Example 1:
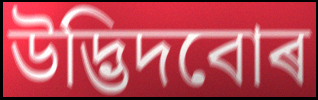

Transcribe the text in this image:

উদ্ভিদবোৰ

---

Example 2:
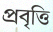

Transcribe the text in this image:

প্ৰবৃত্তি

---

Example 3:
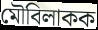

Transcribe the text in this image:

মৌবিলাকক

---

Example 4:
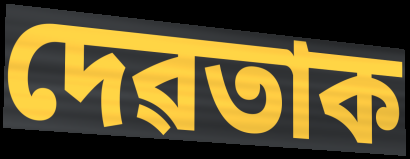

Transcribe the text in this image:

দেৱতাক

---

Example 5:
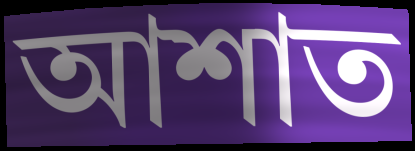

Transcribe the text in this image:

আশাত